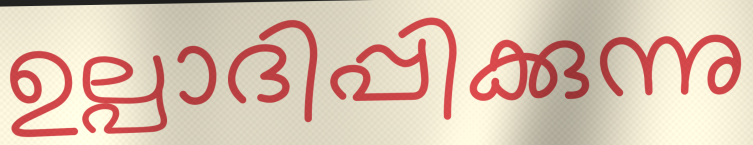
ഉല്പാദിപ്പിക്കുന്നു